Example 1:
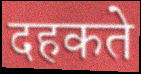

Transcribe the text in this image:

दहकते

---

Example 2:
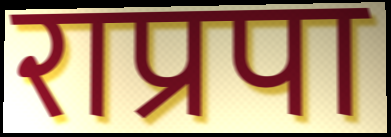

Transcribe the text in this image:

राप्रपा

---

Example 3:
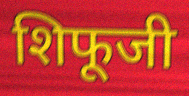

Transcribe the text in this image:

शिफूजी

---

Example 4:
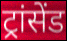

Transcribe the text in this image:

ट्रांसेंड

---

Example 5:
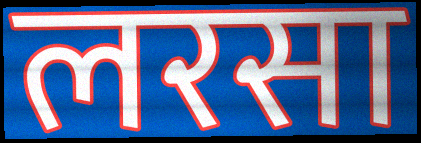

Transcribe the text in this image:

लरसा